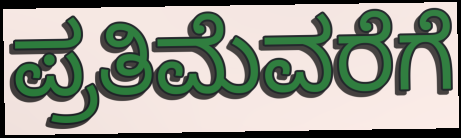
ಪ್ರತಿಮೆವರೆಗೆ